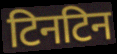
टिनटिन